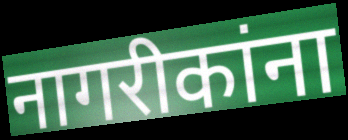
नागरीकांना